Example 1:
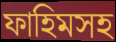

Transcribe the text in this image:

ফাহিমসহ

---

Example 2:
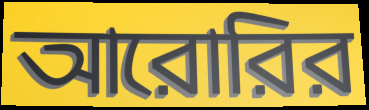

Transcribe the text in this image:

আরোরির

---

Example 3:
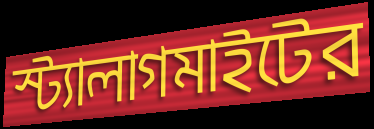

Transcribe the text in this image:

স্ট্যালাগমাইটের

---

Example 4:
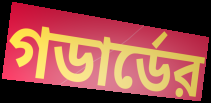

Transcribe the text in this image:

গডার্ডের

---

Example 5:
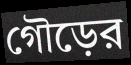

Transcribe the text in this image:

গৌড়ের